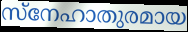
സ്നേഹാതുരമായ